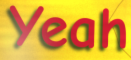
Yeah